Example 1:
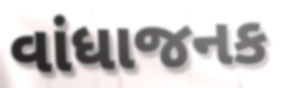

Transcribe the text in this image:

વાંધાજનક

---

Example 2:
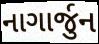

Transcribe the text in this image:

નાગાર્જુન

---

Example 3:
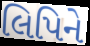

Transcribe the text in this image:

લિપિને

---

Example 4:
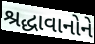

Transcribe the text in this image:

શ્રદ્ધાવાનોને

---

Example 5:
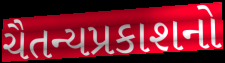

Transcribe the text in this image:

ચૈતન્યપ્રકાશનો